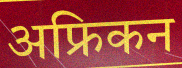
अफ्रिकन